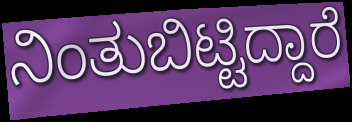
ನಿಂತುಬಿಟ್ಟಿದ್ದಾರೆ